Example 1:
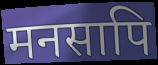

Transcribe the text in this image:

मनसापि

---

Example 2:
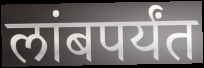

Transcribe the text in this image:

लांबपर्यंत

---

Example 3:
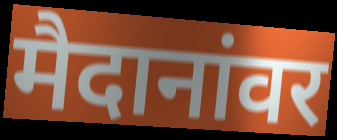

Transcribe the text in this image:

मैदानांवर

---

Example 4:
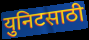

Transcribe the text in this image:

युनिटसाठी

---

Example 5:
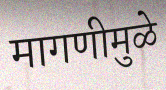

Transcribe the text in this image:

मागणीमुळे